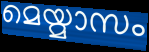
മെയ്മാസം